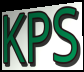
KPS